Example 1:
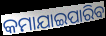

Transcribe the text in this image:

କମାଯାଇପାରିବ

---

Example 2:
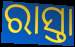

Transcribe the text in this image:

ରାସ୍ତା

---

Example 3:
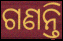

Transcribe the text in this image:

ଗଣନ୍ତି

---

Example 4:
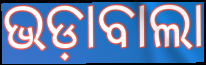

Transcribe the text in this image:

ଭଡ଼ାବାଲା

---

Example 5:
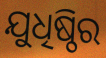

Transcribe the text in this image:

ଯୁଧିଷ୍ଠିର